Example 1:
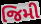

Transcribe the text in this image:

જિમી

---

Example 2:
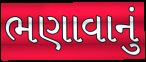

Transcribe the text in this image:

ભણાવાનું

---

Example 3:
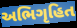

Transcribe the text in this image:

અભિગૃહિત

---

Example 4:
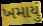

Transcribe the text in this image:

ખમાયું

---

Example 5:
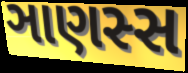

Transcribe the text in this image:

ઞાણસ્સ